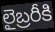
లైబ్రరీకి